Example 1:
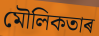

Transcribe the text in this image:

মৌলিকতাৰ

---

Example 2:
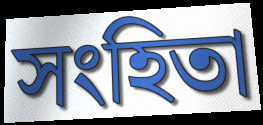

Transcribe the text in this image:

সংহিতা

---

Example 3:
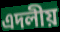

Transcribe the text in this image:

এদলীয়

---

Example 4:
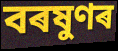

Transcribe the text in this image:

বৰষুণৰ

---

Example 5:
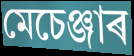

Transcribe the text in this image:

মেচেঞ্জাৰ